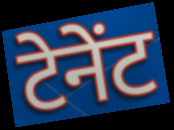
टेनेंट